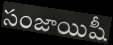
సంజాయిషీ